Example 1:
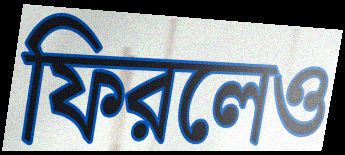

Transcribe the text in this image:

ফিরলেও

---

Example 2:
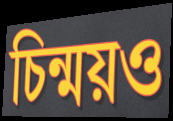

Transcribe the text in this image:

চিন্ময়ও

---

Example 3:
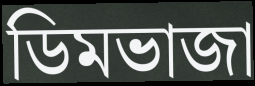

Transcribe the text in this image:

ডিমভাজা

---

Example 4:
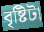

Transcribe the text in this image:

বৃষ্টিটা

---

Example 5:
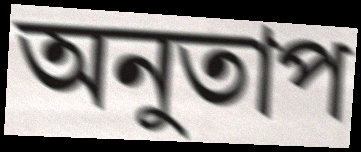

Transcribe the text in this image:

অনুতাপ